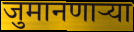
जुमानणार्‍या